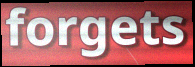
forgets